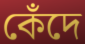
কেঁদে